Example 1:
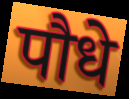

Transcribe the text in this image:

पौधे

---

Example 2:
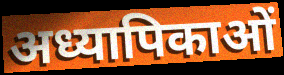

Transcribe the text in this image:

अध्यापिकाओं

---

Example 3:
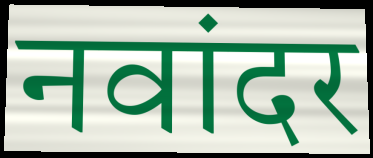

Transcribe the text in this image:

नवांदर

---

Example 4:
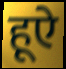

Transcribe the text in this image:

हूऐ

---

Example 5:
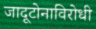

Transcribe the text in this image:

जादूटोनाविरोधी